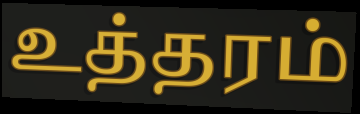
உத்தரம்